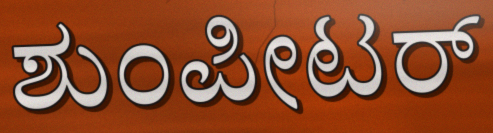
ಶುಂಪೀಟರ್